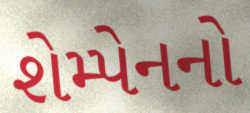
શેમ્પેનનો